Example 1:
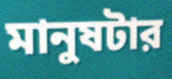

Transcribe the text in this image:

মানুষটার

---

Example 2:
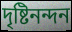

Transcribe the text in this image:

দৃষ্টিনন্দন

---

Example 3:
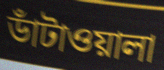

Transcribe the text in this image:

ডাঁটাওয়ালা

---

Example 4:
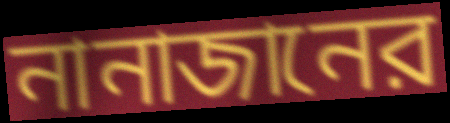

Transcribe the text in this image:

নানাজানের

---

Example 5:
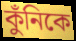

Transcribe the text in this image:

কুঁনিকে